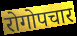
रोगोपचार